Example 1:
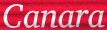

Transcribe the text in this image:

Canara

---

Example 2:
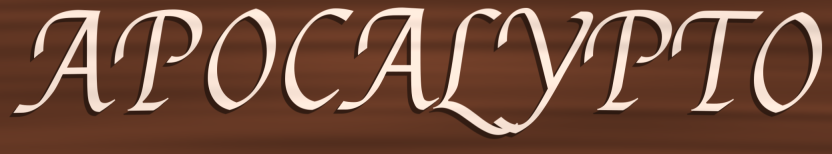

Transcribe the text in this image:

APOCALYPTO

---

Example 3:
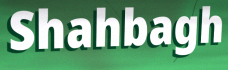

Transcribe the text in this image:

Shahbagh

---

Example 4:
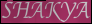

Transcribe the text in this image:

SHAKYA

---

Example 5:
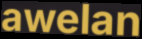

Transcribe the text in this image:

awelan